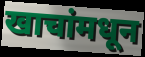
खाचांमधून